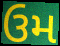
ઉમ